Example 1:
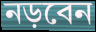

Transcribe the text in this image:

নড়বেন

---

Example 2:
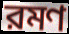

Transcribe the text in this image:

রমণ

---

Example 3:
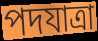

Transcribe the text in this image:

পদযাত্রা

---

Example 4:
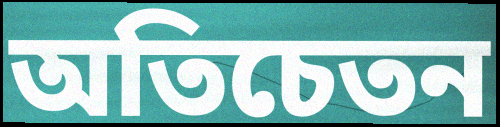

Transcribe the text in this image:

অতিচেতন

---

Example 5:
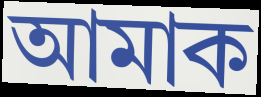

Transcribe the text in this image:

আমাক